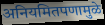
अनियमितपणामुळे